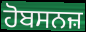
ਹੋਬਸਨਜ਼